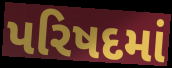
પરિષદમાં